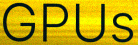
GPUs